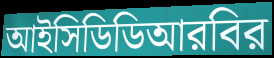
আইসিডিডিআরবির